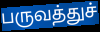
பருவத்துச்